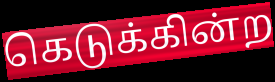
கெடுக்கின்ற